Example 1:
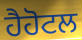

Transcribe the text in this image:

ਹੈਹੋਟਲ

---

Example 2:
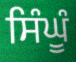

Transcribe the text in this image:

ਸਿੰਘੂੰ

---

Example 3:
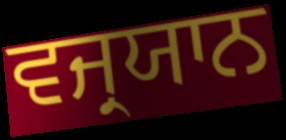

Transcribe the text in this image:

ਵਜ੍ਰਯਾਨ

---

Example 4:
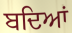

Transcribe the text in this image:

ਬਦਿਆਂ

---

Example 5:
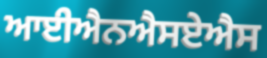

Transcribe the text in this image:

ਆਈਐਨਐਸਏਐਸ